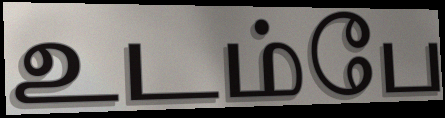
உடம்பே